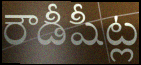
రౌడీషీట్ల